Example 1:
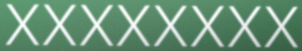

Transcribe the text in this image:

XXXXXXXX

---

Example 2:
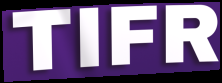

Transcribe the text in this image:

TIFR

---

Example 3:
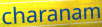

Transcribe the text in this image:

charanam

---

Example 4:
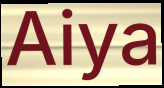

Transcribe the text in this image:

Aiya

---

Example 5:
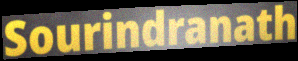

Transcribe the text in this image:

Sourindranath